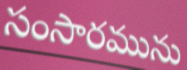
సంసారమును